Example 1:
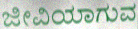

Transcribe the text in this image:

ಜೀವಿಯಾಗುವ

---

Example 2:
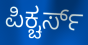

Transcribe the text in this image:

ಪಿಕ್ಚರ್ಸ್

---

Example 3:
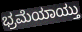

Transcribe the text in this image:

ಭ್ರಮೆಯಾಯ್ತು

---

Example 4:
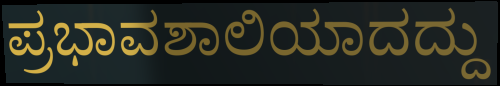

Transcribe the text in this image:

ಪ್ರಭಾವಶಾಲಿಯಾದದ್ದು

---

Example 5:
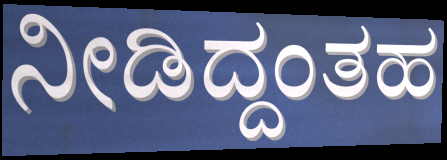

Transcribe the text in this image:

ನೀಡಿದ್ದಂತಹ